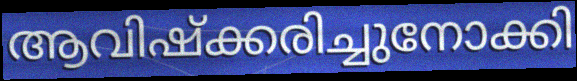
ആവിഷ്ക്കരിച്ചുനോക്കി